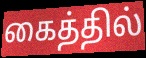
கைத்தில்